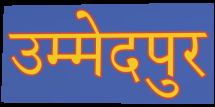
उम्मेदपुर